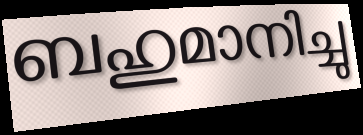
ബഹുമാനിച്ചു